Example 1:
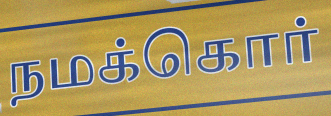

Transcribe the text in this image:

நமக்கொர்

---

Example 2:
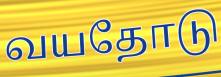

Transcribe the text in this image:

வயதோடு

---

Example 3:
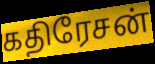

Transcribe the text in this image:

கதிரேசன்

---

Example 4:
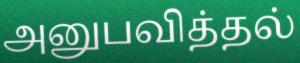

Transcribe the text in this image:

அனுபவித்தல்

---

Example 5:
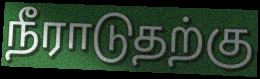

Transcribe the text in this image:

நீராடுதற்கு